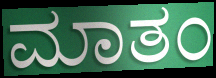
ಮಾತಂ